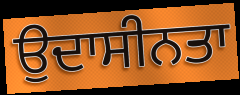
ਉਦਾਸੀਨਤਾ